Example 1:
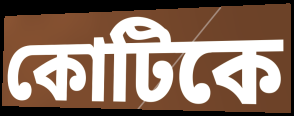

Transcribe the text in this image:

কোটিকে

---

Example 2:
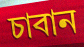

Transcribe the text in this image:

চাবান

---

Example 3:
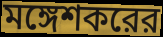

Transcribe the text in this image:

মঙ্গেশকরের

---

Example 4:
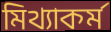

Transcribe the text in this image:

মিথ্যাকর্ম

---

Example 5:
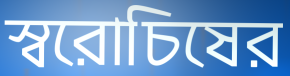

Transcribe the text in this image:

স্বরোচিষের